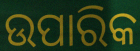
ଉପାରିକ